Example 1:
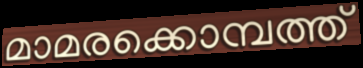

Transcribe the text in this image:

മാമരക്കൊമ്പത്ത്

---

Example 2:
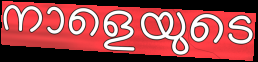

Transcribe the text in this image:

നാളെയുടെ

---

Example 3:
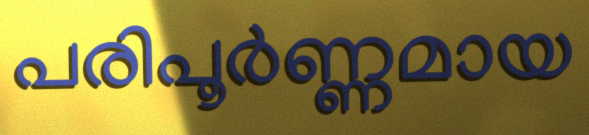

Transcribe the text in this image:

പരിപൂർണ്ണമായ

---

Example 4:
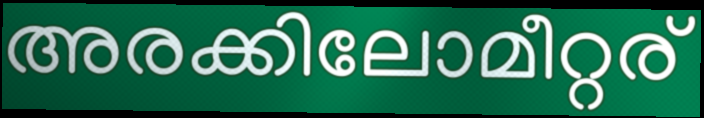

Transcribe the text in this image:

അരക്കിലോമീറ്റര്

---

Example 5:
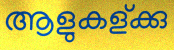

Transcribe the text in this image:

ആളുകള്ക്കു